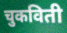
चुकविती